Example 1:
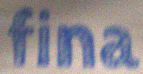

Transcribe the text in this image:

fina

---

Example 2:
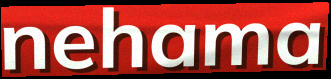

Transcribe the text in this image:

nehama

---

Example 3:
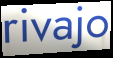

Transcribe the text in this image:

rivajo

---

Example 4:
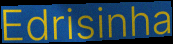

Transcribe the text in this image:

Edrisinha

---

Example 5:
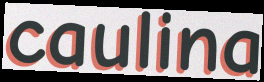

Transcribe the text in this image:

caulina